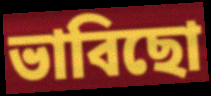
ভাবিছো